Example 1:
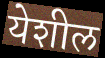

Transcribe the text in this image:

येशील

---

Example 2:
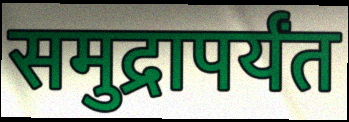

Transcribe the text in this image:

समुद्रापर्यंत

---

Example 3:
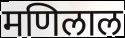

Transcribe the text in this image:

मणिलाल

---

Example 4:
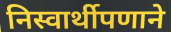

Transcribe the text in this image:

निस्वार्थीपणाने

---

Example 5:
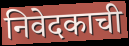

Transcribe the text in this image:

निवेदकाची